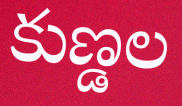
కుణ్డల